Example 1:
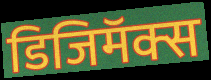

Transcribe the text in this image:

डिजिमॅक्स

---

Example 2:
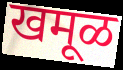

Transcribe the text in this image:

खमूळ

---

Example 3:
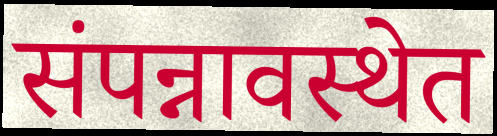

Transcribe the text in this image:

संपन्नावस्थेत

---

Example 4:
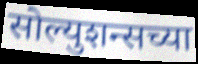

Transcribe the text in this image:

सोल्युशन्सच्या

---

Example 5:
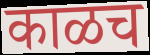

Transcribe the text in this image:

काळच